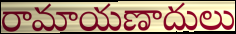
రామాయణాదులు